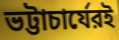
ভট্টাচার্যেরই